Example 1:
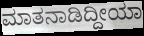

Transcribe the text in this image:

ಮಾತನಾಡಿದ್ದೀಯಾ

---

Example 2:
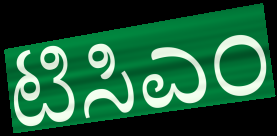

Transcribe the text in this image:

ಟಿಸಿಎಂ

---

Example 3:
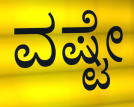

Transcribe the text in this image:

ವಷ್ಟೇ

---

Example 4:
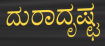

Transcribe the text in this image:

ದುರಾದೃಷ್ಟ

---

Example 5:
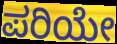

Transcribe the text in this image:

ಪರಿಯೇ